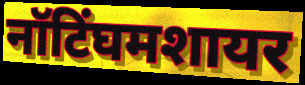
नॉटिंघमशायर